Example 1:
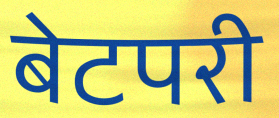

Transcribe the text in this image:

बेटपरी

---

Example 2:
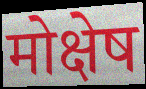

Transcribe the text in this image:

मोक्षेष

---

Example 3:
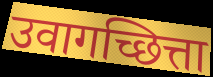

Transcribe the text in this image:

उवागच्छित्ता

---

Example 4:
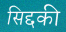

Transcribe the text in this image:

सिद्दकी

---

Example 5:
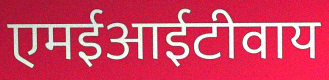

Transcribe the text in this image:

एमईआईटीवाय